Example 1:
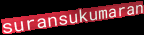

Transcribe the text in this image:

suransukumaran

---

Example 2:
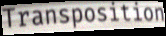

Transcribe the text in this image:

Transposition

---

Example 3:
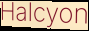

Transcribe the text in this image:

Halcyon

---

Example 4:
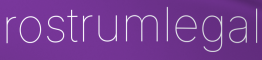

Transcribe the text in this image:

rostrumlegal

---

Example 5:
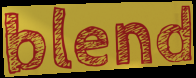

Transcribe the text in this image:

blend